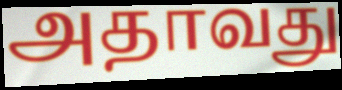
அதாவது